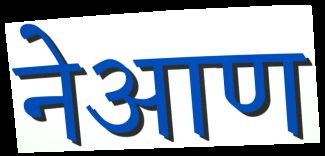
नेआण